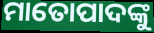
ମାତୋପାଦଙ୍କୁ